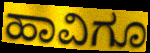
ಹಾವಿಗೂ